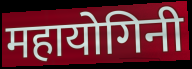
महायोगिनी